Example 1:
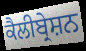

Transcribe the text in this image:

ਕੈਲੀਬ੍ਰੇਸ਼ਨ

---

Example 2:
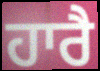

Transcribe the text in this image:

ਹਾਰੈ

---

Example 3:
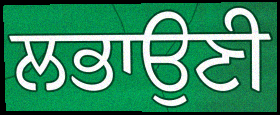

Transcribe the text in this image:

ਲਭਾਉਣੀ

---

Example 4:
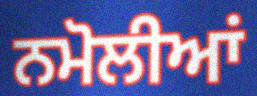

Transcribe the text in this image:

ਨਮੋਲੀਆਂ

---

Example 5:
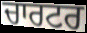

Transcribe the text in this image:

ਚਾਰਟਰ